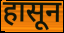
हासून